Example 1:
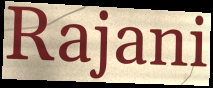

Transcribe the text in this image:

Rajani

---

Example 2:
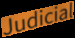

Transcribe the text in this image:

Judicial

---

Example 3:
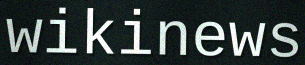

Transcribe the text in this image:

wikinews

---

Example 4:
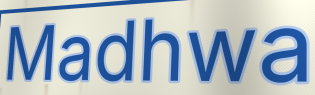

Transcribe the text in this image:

Madhwa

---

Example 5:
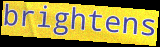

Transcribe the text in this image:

brightens